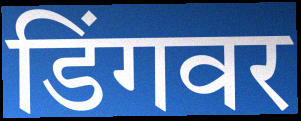
डिंगवर